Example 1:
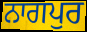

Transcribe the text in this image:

ਨਾਗਪੁਰ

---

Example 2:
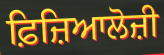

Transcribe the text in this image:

ਫ਼ਿਜ਼ਿਆਲੋਜ਼ੀ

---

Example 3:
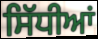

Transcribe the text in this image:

ਸਿੱਧੀਆਂ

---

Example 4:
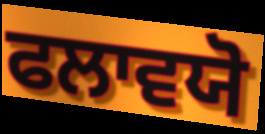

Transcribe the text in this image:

ਫਲਾਵਯੋ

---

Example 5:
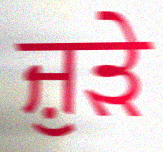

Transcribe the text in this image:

ਜ਼ੁੜੇ